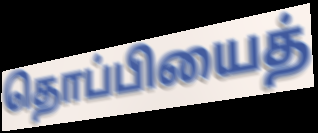
தொப்பியைத்